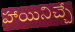
హాయినిచ్చే